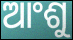
ଆଂଶୁ